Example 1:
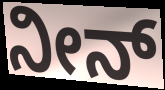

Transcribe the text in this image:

ನೀನ್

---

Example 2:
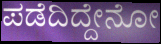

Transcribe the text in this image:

ಪಡೆದಿದ್ದೇನೋ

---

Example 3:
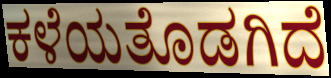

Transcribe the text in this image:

ಕಳೆಯತೊಡಗಿದೆ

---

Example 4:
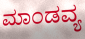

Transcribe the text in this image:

ಮಾಂಡವ್ಯ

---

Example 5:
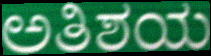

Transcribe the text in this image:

ಅತಿಶಯ